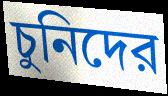
চুনিদের